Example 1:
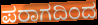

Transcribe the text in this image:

ಪರಾಗದಿಂದ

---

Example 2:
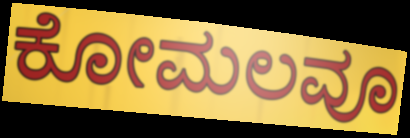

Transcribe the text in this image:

ಕೋಮಲವೂ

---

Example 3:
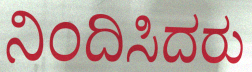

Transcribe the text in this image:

ನಿಂದಿಸಿದರು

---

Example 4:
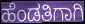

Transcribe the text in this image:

ಹೆಂಡತಿಗಾಗಿ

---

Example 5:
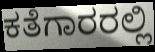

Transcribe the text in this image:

ಕತೆಗಾರರಲ್ಲಿ